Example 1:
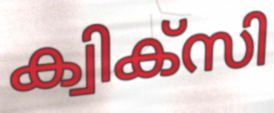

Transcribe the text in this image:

ക്വിക്സി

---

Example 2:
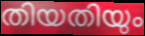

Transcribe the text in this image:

തിയതിയും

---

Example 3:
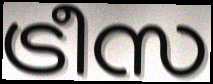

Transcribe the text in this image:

ട്രീസ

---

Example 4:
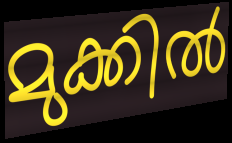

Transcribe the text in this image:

മുക്കിൽ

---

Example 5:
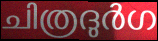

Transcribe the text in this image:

ചിത്രദുർഗ